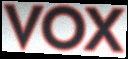
vox